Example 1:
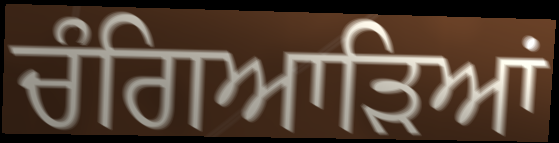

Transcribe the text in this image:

ਚੰਗਿਆੜਿਆਂ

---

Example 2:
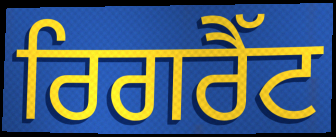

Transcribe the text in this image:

ਰਿਗਰੈੱਟ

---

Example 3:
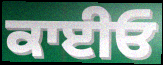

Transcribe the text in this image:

ਕਾਈਓ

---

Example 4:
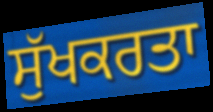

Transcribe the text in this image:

ਸੁੱਖਕਰਤਾ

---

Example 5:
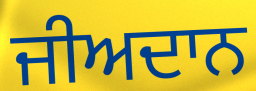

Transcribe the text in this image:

ਜੀਅਦਾਨ